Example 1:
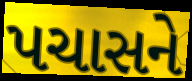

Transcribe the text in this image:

પચાસને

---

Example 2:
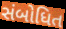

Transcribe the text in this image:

સંબોધિત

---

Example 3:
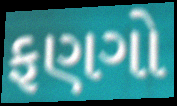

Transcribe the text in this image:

ફણગો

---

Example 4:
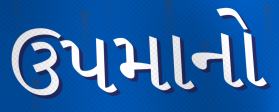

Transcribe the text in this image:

ઉપમાનો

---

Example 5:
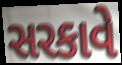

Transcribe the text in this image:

સરકાવે